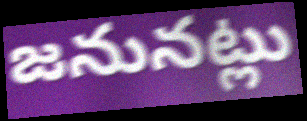
జనునట్లు